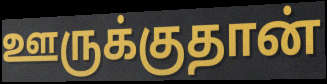
ஊருக்குதான்